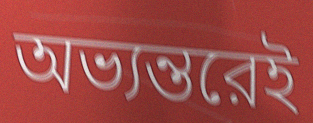
অভ্যন্তরেই